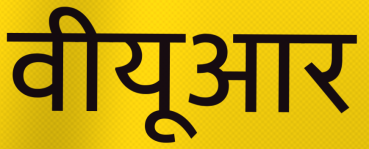
वीयूआर